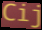
Cij